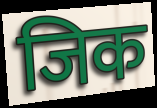
जिक